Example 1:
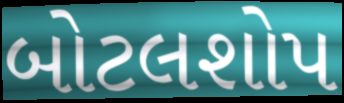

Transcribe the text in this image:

બોટલશોપ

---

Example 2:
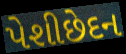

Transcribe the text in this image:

પેશીછેદન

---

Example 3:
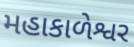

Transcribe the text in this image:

મહાકાળેશ્વર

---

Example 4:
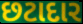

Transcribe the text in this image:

છટાદાર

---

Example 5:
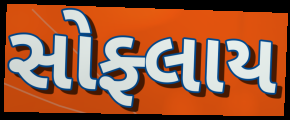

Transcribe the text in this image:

સોફ્લાય